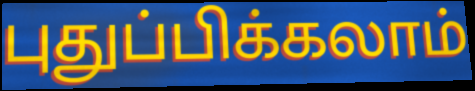
புதுப்பிக்கலாம்